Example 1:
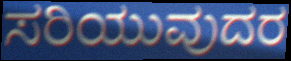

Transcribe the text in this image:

ಸರಿಯುವುದರ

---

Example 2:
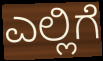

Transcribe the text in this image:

ಎಲ್ಲಿಗೆ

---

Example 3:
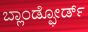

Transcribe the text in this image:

ಬ್ಲಾಂಡ್ಫೋರ್ಡ್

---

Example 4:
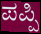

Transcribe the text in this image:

ಪಪ್ಪಿ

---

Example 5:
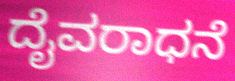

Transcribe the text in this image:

ದೈವರಾಧನೆ